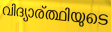
വിദ്യാര്ത്ഥിയുടെ